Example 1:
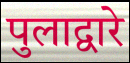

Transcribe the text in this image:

पुलाद्वारे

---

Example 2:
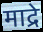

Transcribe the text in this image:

माद्रे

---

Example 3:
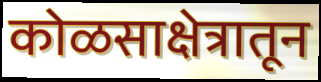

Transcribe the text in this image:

कोळसाक्षेत्रातून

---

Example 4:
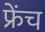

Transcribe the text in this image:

फ्रेंच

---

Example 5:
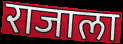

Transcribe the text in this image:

राजाला